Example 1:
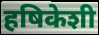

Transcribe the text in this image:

हषिकेशी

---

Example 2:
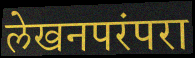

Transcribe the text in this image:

लेखनपरंपरा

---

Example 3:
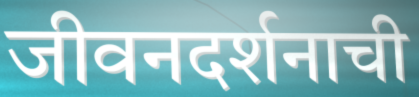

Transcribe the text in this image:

जीवनदर्शनाची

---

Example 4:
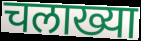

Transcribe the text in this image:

चलाख्या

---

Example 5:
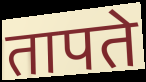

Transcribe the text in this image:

तापते